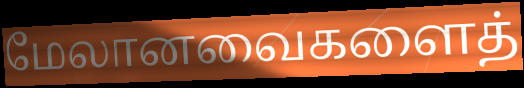
மேலானவைகளைத்